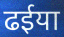
ढईया